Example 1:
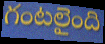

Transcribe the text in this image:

గంటలైంది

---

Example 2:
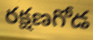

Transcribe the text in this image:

రక్షణగోడ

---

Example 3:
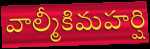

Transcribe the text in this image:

వాల్మీకిమహర్షి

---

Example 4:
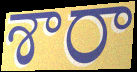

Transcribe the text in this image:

శారా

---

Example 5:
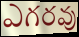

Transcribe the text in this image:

ఎగరవు